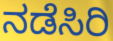
ನಡೆಸಿರಿ